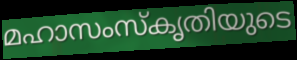
മഹാസംസ്കൃതിയുടെ